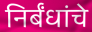
निर्बंधांचे